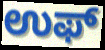
ಉಫ್